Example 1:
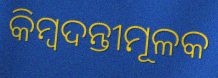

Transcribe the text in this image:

କିମ୍ବଦନ୍ତୀମୂଳକ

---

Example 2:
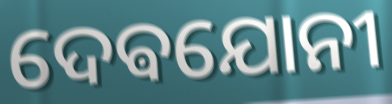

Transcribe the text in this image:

ଦେଵଯୋନୀ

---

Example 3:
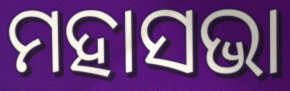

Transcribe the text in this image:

ମହାସଭା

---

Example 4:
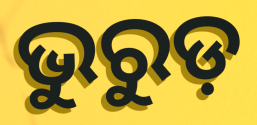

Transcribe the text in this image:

ଭୁରୁଡ଼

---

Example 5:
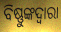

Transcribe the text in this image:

ବିଷ୍ଣୁଙ୍କଦ୍ୱାରା